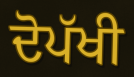
ਦੋਪੱਖੀ